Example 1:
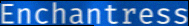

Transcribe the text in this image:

Enchantress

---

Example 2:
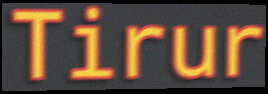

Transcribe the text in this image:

Tirur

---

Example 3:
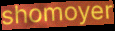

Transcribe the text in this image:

shomoyer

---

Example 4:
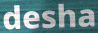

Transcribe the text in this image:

desha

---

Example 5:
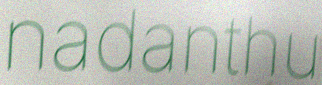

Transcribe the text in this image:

nadanthu